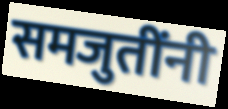
समजुतींनी